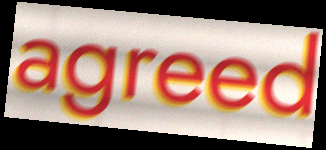
agreed